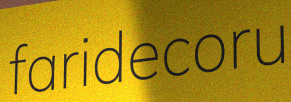
faridecoru